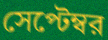
সেপ্টেম্বর